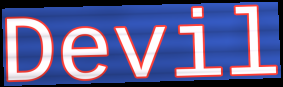
Devil